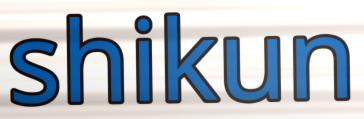
shikun